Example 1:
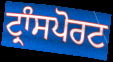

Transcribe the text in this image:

ਟ੍ਰਾੰਸਪੋਰਟ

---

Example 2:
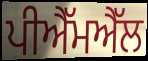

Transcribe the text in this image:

ਪੀਐੱਮਐੱਲ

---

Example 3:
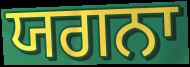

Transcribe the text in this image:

ਯਗਨਾ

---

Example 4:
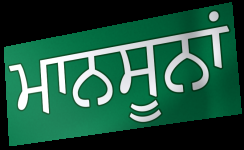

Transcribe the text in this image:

ਮਾਨਸੂਨਾਂ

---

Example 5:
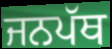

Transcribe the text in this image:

ਜਨਪੱਥ